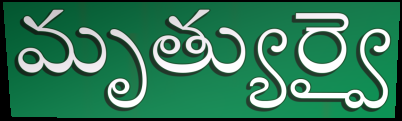
మృత్యుర్వై